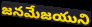
జనమేజయుని